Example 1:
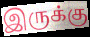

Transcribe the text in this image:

இருக்கு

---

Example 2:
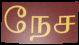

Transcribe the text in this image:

நேச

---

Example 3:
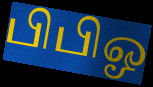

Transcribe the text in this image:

பிபிஓ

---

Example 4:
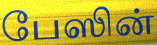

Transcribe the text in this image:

பேஸின்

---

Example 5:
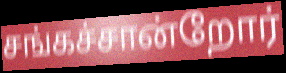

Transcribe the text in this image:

சங்கச்சான்றோர்